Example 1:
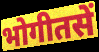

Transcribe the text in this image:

भोगीतसें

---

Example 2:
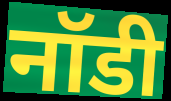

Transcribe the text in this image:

नॉडी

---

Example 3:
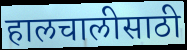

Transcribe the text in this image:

हालचालीसाठी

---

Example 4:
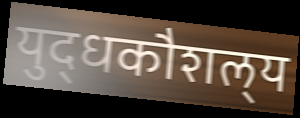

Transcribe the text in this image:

युद्धकौशल्य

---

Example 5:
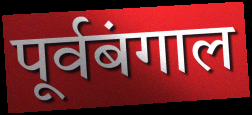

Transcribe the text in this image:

पूर्वबंगाल